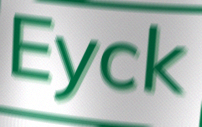
Eyck